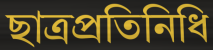
ছাত্রপ্রতিনিধি